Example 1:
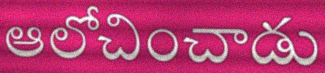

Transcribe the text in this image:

ఆలోచించాడు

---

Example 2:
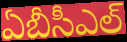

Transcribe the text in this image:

ఏబీసీఎల్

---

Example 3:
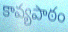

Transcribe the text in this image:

కావ్యపాఠం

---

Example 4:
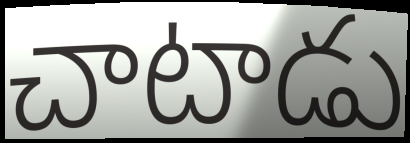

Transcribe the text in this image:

చాటాడు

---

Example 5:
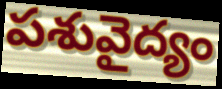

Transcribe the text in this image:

పశువైద్యం